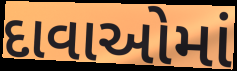
દાવાઓમાં